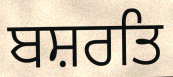
ਬਸ਼ਰਤਿ